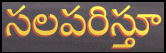
సలపరిస్తూ